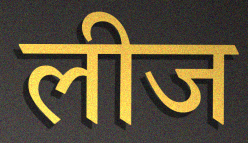
लीज